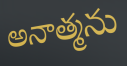
అనాత్మను